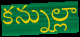
కన్నుల్లా